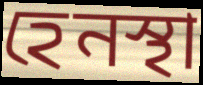
হেনস্থা